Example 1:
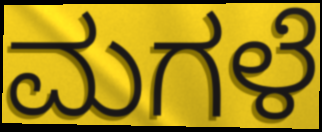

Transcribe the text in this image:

ಮಗಳೆ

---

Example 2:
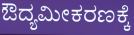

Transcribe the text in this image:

ಔದ್ಯಮೀಕರಣಕ್ಕೆ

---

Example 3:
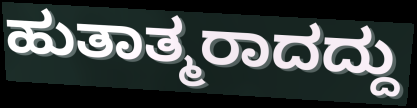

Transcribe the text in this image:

ಹುತಾತ್ಮರಾದದ್ದು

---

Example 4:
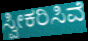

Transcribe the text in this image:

ಸ್ವೀಕರಿಸಿವೆ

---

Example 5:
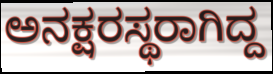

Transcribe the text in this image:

ಅನಕ್ಷರಸ್ಥರಾಗಿದ್ದ